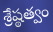
శ్రేష్ఠత్వం